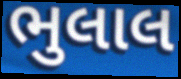
ભુલાલ